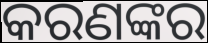
କରଣଙ୍କର